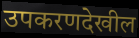
उपकरणदेखील